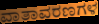
ವಾತಾವರಣಗಳ